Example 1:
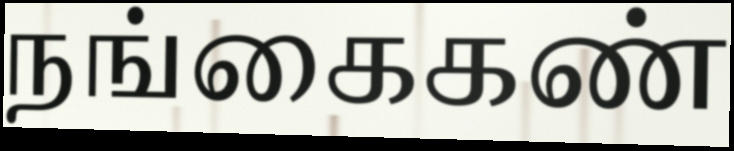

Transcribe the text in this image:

நங்கைகண்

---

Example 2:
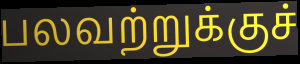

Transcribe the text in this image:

பலவற்றுக்குச்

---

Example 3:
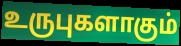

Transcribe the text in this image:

உருபுகளாகும்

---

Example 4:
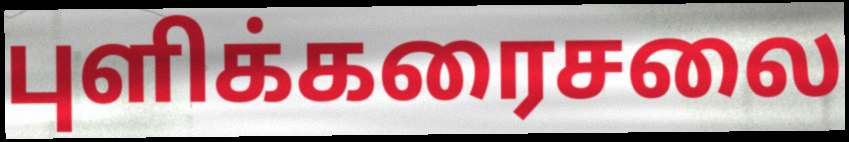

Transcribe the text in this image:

புளிக்கரைசலை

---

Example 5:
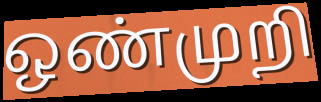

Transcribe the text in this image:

ஒண்முறி